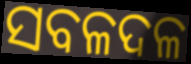
ସବଳଦଳ